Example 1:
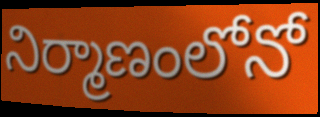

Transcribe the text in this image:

నిర్మాణంలోనో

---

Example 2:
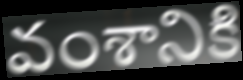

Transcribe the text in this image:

వంశానికి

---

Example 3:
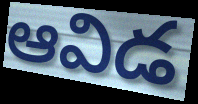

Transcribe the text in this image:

ఆవిడ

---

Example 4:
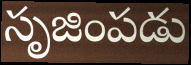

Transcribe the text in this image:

సృజింపడు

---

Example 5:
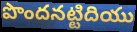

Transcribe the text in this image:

పొందనట్టిదియు